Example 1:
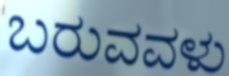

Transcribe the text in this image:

ಬರುವವಳು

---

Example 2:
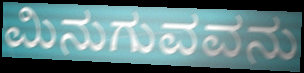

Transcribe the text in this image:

ಮಿನುಗುವವನು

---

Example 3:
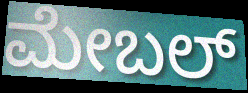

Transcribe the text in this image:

ಮೇಬಲ್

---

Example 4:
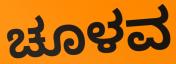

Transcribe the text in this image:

ಚೂಳವ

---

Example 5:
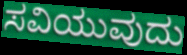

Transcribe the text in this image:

ಸವಿಯುವುದು